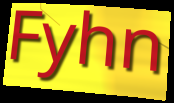
Fyhn